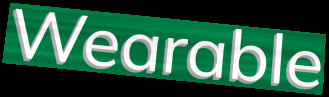
Wearable